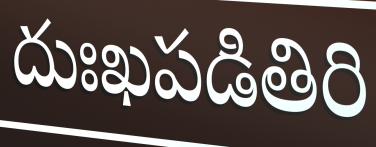
దుఃఖపడితిరి